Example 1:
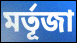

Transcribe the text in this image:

মর্তূজা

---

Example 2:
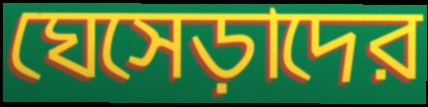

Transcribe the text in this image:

ঘেসেড়াদের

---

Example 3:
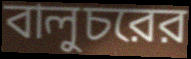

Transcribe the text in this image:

বালুচরের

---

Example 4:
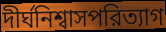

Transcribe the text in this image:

দীর্ঘনিশ্বাসপরিত্যাগ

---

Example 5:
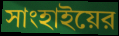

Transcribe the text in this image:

সাংহাইয়ের